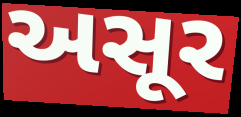
અસૂર